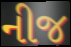
નીજ